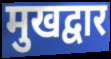
मुखद्वार